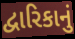
દ્વારિકાનું